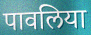
पावलिया